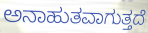
ಅನಾಹುತವಾಗುತ್ತದೆ